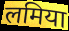
लमिया